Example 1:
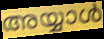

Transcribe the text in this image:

അയ്യാൾ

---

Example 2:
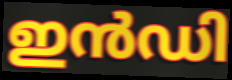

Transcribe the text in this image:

ഇൻഡി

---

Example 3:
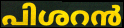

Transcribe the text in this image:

പിശറൻ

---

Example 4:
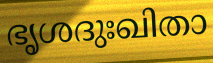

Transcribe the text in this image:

ഭൃശദുഃഖിതാ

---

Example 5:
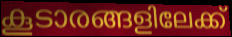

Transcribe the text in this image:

കൂടാരങ്ങളിലേക്ക്